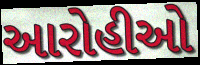
આરોહીઓ